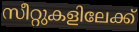
സീറ്റുകളിലേക്ക്